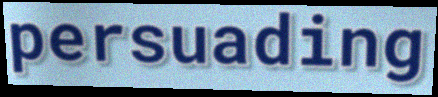
persuading